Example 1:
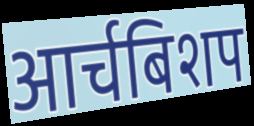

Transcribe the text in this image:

आर्चबिशप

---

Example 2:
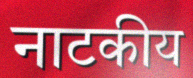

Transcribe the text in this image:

नाटकीय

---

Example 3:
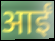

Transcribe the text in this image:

आईं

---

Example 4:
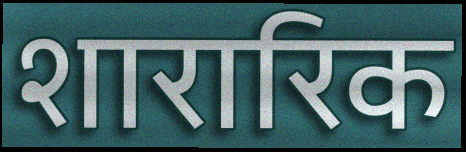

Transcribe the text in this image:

शारारिक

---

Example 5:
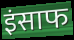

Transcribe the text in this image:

इंसाफ